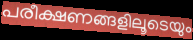
പരീക്ഷണങ്ങളിലൂടെയും